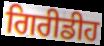
ਗਿਰੀਡੀਹ